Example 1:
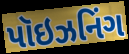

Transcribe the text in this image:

પૉઇઝનિંગ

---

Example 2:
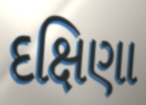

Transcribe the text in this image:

દક્ષિણા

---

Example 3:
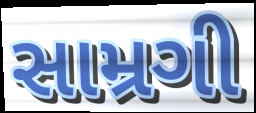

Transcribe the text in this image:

સામ્રગી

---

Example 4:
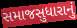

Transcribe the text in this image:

સમાજસુધારાનું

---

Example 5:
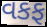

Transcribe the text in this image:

વકફ